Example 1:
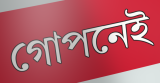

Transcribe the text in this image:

গোপনেই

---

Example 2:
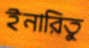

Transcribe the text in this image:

ইনারিতু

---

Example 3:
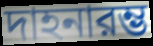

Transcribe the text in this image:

দাহনারম্ভ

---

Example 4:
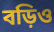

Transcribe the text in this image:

বড়িও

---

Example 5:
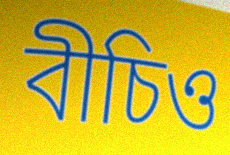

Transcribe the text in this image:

বীচিও